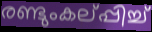
രണ്ടുംകല്പ്പിച്ച്